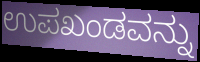
ಉಪಖಂಡವನ್ನು